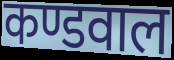
कण्डवाल